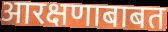
आरक्षणाबाबत